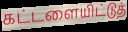
கட்டளையிட்டுத்